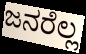
ಜನರೆಲ್ಲ